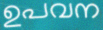
ഉപവന